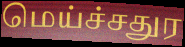
மெய்ச்சதுர